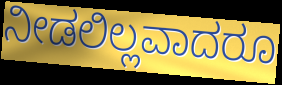
ನೀಡಲಿಲ್ಲವಾದರೂ